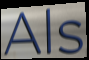
Als